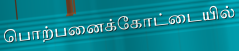
பொற்பனைக்கோட்டையில்